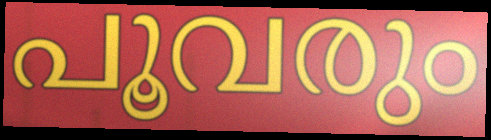
പൂവരും